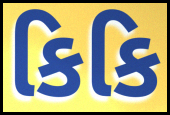
કિકિ